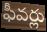
ఫీవర్లు